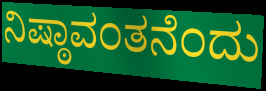
ನಿಷ್ಠಾವಂತನೆಂದು